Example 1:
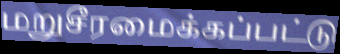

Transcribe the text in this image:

மறுசீரமைக்கப்பட்டு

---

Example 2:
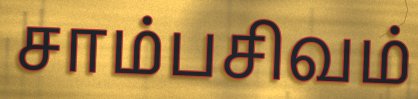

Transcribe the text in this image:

சாம்பசிவம்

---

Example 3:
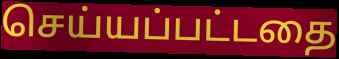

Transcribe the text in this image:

செய்யப்பட்டதை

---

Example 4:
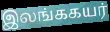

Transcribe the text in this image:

இலங்ககயர்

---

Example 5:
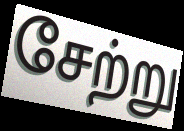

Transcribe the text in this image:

சேற்று